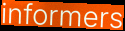
informers